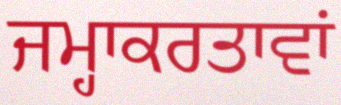
ਜਮ੍ਹਾਕਰਤਾਵਾਂ